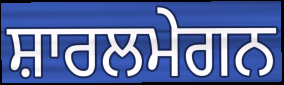
ਸ਼ਾਰਲਮੇਗਨ